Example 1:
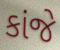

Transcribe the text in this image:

કાંજે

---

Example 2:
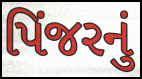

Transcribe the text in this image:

પિંજરનું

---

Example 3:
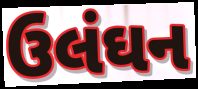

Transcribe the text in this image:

ઉલંઘન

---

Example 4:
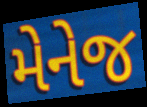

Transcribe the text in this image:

મેનેજ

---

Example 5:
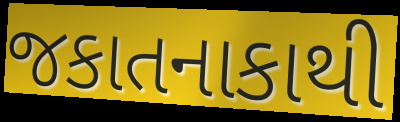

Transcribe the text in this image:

જકાતનાકાથી